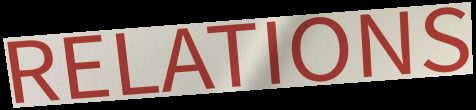
RELATIONS